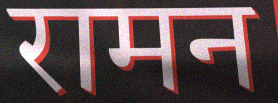
रामन